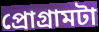
প্রোগ্রামটা